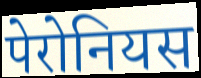
पेरोनियस